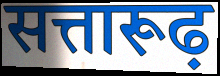
सत्तारूढ़